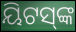
ୟିଟସ୍‌ଙ୍କ